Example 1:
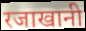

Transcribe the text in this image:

रजाखानी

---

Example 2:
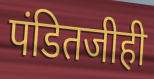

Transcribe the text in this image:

पंडितजीही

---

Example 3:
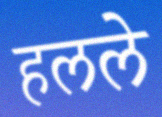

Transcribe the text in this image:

हलले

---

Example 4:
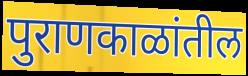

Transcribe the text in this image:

पुराणकाळांतील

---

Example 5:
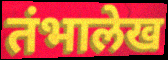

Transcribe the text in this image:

तंभालेख